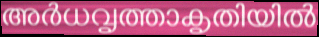
അർധവൃത്താകൃതിയിൽ